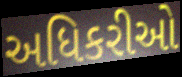
અધિકરીઓ